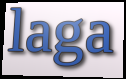
laga